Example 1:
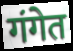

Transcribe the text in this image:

गंगेत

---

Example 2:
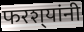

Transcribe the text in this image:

फरश्यांनी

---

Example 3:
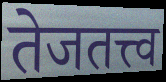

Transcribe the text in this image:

तेजतत्त्व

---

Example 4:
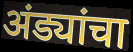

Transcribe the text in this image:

अंड्यांचा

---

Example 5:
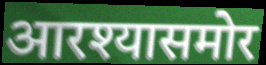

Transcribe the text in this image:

आरश्यासमोर